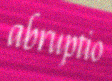
abruptio